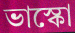
ভাস্কো